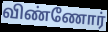
விண்ணோர்